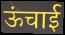
ऊंचाई